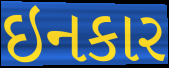
ઇનકાર